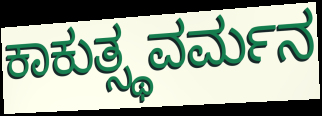
ಕಾಕುತ್ಸ್ಥವರ್ಮನ